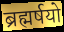
ब्रह्मर्षयो